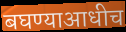
बघण्याआधीच